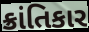
ક્રાંતિકાર